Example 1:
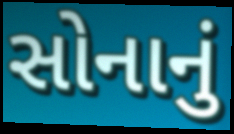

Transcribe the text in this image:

સોનાનું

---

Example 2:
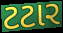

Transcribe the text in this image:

ટટાર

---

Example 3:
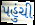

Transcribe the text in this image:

પહુંચી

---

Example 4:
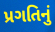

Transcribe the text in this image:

પ્રગતિનું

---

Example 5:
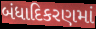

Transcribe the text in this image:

બંધાદિકરણમાં